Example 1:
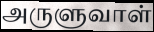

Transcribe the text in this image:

அருளுவாள்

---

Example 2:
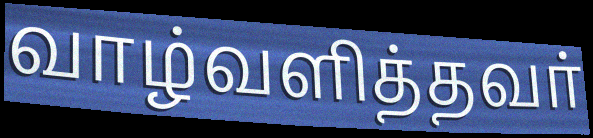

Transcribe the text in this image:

வாழ்வளித்தவர்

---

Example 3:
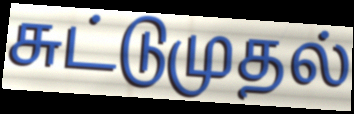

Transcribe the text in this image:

சுட்டுமுதல்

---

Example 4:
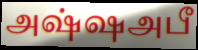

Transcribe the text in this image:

அஷ்ஷஅபீ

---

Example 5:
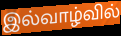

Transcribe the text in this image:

இல்வாழ்வில்